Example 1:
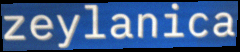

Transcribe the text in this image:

zeylanica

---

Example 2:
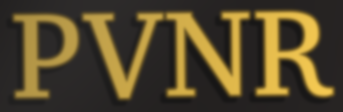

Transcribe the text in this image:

PVNR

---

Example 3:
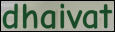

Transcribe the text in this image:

dhaivat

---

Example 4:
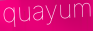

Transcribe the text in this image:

quayum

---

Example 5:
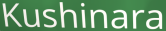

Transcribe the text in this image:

Kushinara